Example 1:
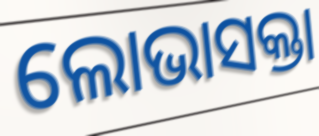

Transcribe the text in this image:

ଲୋଭାସକ୍ତା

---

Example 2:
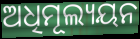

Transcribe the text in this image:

ଅଧିମୂଲ୍ୟୟନ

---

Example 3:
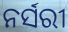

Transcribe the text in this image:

ନର୍ସରୀ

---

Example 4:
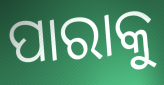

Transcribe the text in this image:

ପାରାକୁ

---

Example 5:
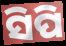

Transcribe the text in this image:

ସିପି